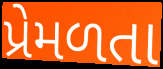
પ્રેમળતા